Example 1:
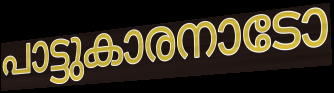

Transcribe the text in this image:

പാട്ടുകാരനാടോ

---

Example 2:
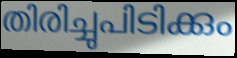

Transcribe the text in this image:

തിരിച്ചുപിടിക്കും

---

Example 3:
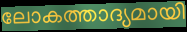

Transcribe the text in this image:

ലോകത്താദ്യമായി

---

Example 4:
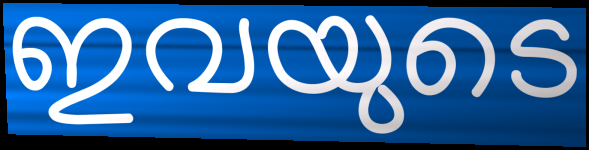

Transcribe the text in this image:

ഇവയുടെ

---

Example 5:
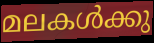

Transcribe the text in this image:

മലകൾക്കു